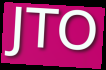
JTO